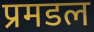
प्रमडल